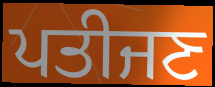
ਪਤੀਜਣ